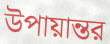
উপায়ান্তর